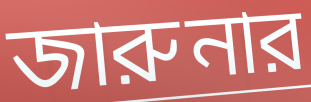
জারুনার